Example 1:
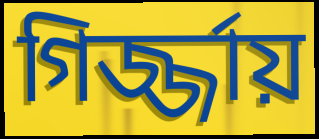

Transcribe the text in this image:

গির্জ্জায়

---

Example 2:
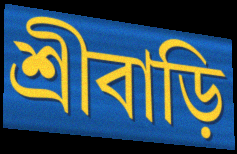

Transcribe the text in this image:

শ্রীবাড়ি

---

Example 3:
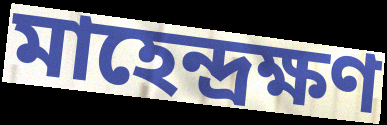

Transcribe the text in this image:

মাহেন্দ্রক্ষণ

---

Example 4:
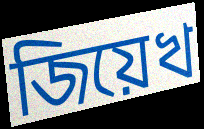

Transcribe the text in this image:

জিয়েখ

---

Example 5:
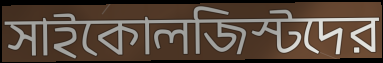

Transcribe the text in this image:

সাইকোলজিস্টদের